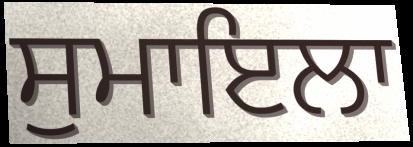
ਸੁਮਾਇਲਾ